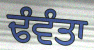
ਢੰਵੰਤਾ